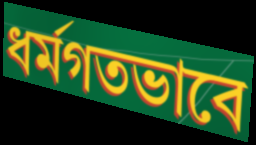
ধর্মগতভাবে